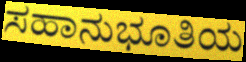
ಸಹಾನುಭೂತಿಯ